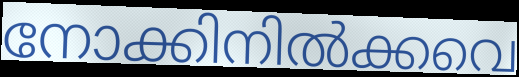
നോക്കിനിൽക്കവെ